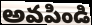
అవపిండి